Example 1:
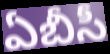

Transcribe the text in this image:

ఏబీసీ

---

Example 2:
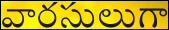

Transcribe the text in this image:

వారసులుగా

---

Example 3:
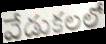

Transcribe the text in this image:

వేడుకలలో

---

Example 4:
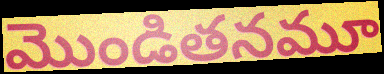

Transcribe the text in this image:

మొండితనమూ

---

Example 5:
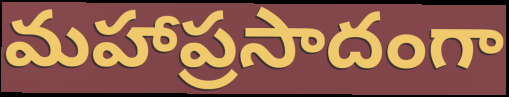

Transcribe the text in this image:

మహాప్రసాదంగా